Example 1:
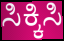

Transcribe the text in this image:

ಸಿಕ್ಕಿಸಿ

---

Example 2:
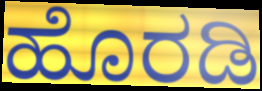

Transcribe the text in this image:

ಹೊರಡಿ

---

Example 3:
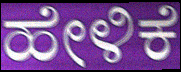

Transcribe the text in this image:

ಹೇಳಿಕೆ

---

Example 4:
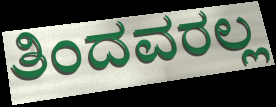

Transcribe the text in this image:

ತಿಂದವರಲ್ಲ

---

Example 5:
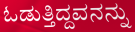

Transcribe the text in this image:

ಓಡುತ್ತಿದ್ದವನನ್ನು